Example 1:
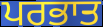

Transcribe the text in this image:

ਪਰਭਾਤ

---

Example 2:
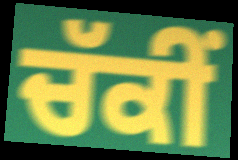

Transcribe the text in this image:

ਚੱਕੀਂ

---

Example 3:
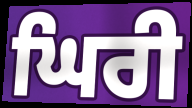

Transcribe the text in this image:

ਘਿਰੀ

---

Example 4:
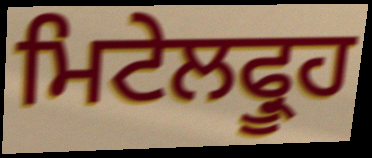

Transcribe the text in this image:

ਮਿਟੇਲਫ੍ਰੂਹ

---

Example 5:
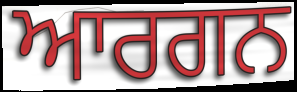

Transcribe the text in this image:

ਆਰਗਨ